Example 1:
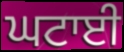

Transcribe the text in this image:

ਘਟਾਈ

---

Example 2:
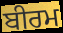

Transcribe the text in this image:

ਬੀਰਮ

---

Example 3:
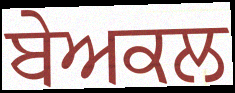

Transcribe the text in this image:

ਬੇਅਕਲ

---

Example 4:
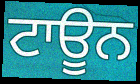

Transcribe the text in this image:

ਟਾਊਨ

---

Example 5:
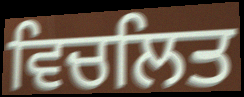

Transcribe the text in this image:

ਵਿਚਲਿਤ